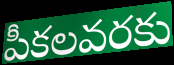
పీకలవరకు